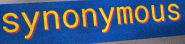
synonymous